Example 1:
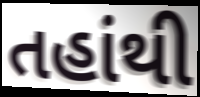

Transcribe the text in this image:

તહાંથી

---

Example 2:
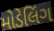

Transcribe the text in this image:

મોડેલિંગ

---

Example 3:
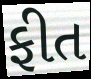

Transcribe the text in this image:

ફીત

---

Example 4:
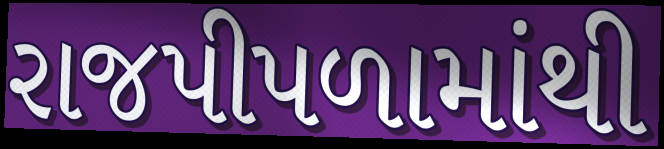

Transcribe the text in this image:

રાજપીપળામાંથી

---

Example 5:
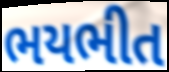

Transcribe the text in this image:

ભયભીત